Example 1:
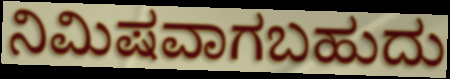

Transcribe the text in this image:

ನಿಮಿಷವಾಗಬಹುದು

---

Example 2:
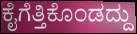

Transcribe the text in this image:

ಕೈಗೆತ್ತಿಕೊಂಡದ್ದು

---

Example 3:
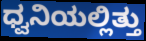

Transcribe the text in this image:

ಧ್ವನಿಯಲ್ಲಿತ್ತು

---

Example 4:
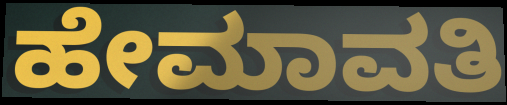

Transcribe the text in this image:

ಹೇಮಾವತಿ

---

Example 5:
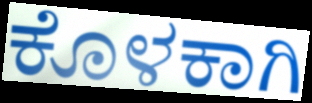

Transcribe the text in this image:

ಕೊಳಕಾಗಿ